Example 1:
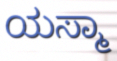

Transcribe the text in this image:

ಯಸ್ಮಾ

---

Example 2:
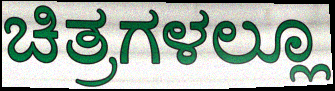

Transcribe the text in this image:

ಚಿತ್ರಗಳಲ್ಲೂ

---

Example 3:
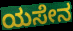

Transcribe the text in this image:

ಯಸೇನ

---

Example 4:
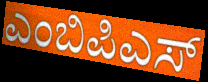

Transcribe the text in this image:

ಎಂಬಿಪಿಎಸ್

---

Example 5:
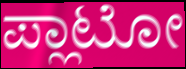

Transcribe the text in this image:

ಪ್ಲಾಟೋ